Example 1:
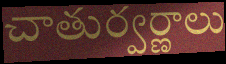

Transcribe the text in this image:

చాతుర్వర్ణాలు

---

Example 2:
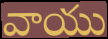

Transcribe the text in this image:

వాయు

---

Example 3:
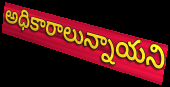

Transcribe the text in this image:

అధికారాలున్నాయని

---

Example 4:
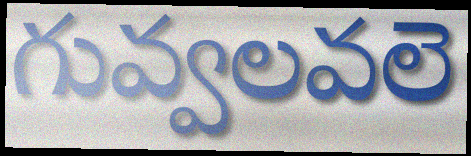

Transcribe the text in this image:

గువ్వలవలె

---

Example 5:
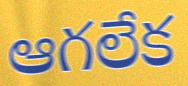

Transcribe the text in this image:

ఆగలేక